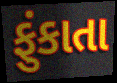
ફુંકાતા